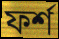
ফর্শ